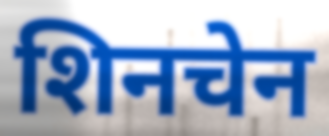
शिनचेन